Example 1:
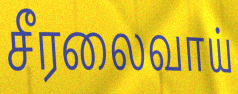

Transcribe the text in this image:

சீரலைவாய்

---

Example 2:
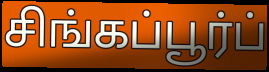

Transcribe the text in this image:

சிங்கப்பூர்ப்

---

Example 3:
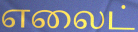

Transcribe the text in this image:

எலைட்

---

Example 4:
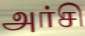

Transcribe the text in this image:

அர்சி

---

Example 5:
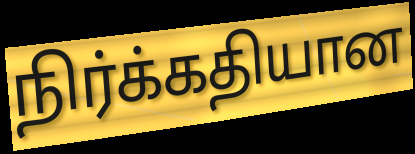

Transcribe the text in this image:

நிர்க்கதியான